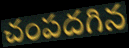
చంపదగిన